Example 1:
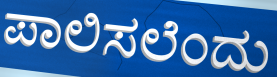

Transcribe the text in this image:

ಪಾಲಿಸಲೆಂದು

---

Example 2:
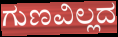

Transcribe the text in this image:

ಗುಣವಿಲ್ಲದ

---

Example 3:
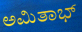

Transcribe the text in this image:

ಅಮಿತಾಭ್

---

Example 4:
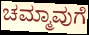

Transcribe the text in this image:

ಚಮ್ಮಾವುಗೆ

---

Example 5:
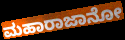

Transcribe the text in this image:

ಮಹಾರಾಜಾನೋ